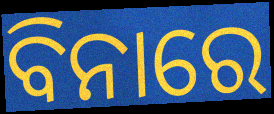
ବିନାରେ